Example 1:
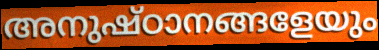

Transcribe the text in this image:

അനുഷ്ഠാനങ്ങളേയും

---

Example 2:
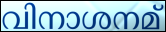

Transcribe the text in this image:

വിനാശനമ്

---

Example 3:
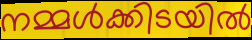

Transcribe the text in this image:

നമ്മൾക്കിടയിൽ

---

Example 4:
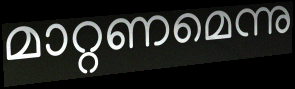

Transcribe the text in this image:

മാറ്റണമെന്നു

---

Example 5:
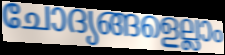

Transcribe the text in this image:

ചോദ്യങ്ങളെല്ലാം